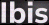
Ibis